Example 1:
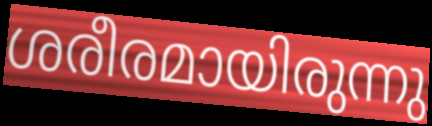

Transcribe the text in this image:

ശരീരമായിരുന്നു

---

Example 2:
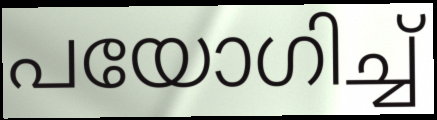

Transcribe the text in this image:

പയോഗിച്ച്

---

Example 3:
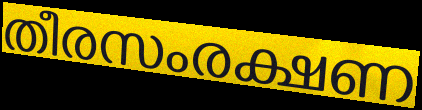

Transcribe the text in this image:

തീരസംരക്ഷണ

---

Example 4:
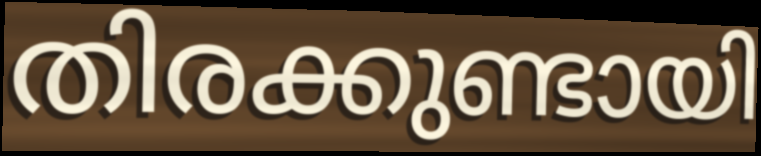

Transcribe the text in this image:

തിരക്കുണ്ടായി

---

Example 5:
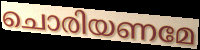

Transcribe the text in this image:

ചൊരിയണമേ